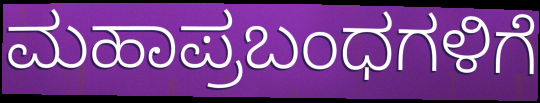
ಮಹಾಪ್ರಬಂಧಗಳಿಗೆ